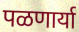
पळणार्या